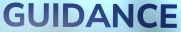
GUIDANCE